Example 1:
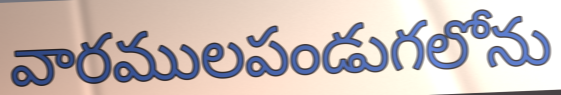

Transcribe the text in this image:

వారములపండుగలోను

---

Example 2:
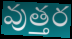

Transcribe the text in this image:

వుత్తర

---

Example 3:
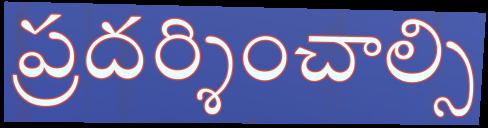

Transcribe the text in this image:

ప్రదర్శించాల్సి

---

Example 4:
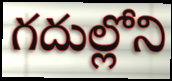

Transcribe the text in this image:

గదుల్లోని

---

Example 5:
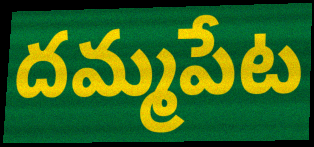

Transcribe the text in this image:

దమ్మపేట